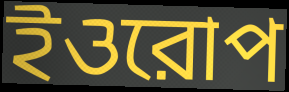
ইওরোপ